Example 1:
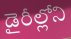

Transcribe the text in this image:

డైరీల్లోని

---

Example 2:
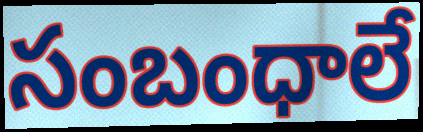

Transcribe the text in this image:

సంబంధాలే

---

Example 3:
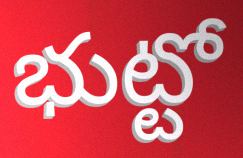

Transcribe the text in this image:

భుట్టో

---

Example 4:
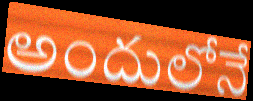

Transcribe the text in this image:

అందులోనే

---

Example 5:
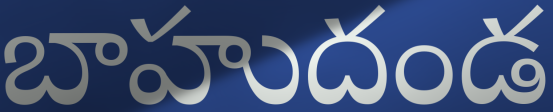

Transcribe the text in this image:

బాహుదండ